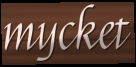
mycket